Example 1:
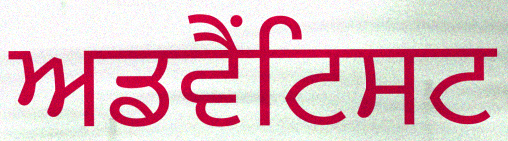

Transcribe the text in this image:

ਅਡਵੈਂਟਿਸਟ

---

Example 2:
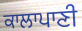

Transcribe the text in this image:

ਕਾਲਾਪਾਣੀ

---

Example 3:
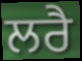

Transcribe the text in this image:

ਲਰੈ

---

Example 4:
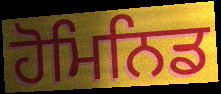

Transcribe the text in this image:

ਹੋਮਿਨਿਡ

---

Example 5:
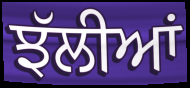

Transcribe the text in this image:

ਝੱਲੀਆਂ